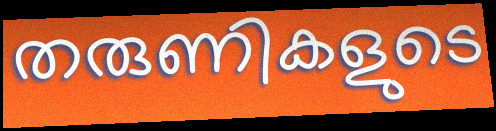
തരുണികളുടെ